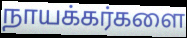
நாயக்கர்களை